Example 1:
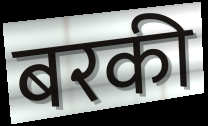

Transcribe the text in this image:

बरकी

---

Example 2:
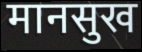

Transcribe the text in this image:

मानसुख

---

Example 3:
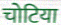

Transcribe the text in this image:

चोटिया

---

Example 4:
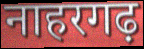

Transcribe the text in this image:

नाहरगढ़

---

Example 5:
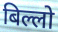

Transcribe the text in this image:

बिल्लो